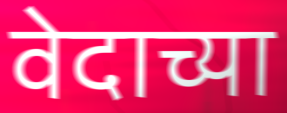
वेदाच्या